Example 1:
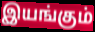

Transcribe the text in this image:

இயங்கும்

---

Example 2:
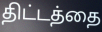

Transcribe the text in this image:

திட்டத்தை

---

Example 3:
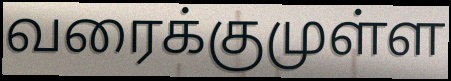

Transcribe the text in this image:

வரைக்குமுள்ள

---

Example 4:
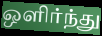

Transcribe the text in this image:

ஒளிர்ந்து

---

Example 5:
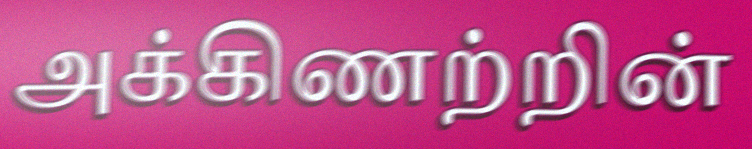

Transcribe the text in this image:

அக்கிணற்றின்